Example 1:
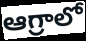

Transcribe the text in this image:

ఆగ్రాలో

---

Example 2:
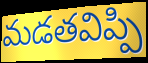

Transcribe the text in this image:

మడతవిప్పి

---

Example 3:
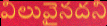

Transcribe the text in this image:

విలువైనదని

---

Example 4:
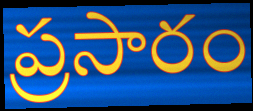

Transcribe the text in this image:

ప్రసారం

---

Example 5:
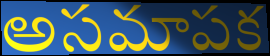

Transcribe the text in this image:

అసమాపక